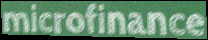
microfinance